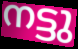
നട്ടു